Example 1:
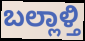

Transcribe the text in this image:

ಬಲ್ಲಾಳ್ತಿ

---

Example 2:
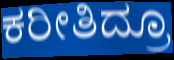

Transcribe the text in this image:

ಕರೀತಿದ್ರೂ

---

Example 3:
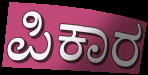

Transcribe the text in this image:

ಪಿಕಾರ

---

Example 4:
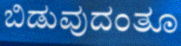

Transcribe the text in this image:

ಬಿಡುವುದಂತೂ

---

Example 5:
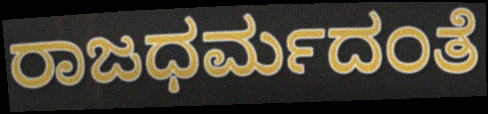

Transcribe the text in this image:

ರಾಜಧರ್ಮದಂತೆ